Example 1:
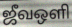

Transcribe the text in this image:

ஜீவஒளி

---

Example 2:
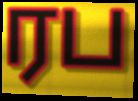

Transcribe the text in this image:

ரப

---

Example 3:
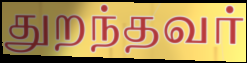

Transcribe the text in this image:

துறந்தவர்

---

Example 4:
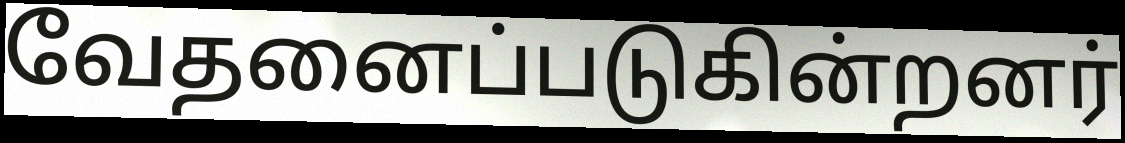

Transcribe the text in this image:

வேதனைப்படுகின்றனர்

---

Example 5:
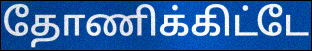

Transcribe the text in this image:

தோணிக்கிட்டே